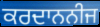
ਕਰਦਾਨਨੀਜ